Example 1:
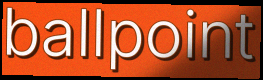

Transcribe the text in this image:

ballpoint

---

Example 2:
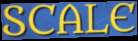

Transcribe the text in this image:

SCALE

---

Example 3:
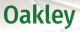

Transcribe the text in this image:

Oakley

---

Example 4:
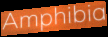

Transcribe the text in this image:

Amphibia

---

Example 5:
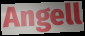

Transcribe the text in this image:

Angell